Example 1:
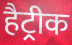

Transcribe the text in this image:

हैट्रीक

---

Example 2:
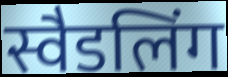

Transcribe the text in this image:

स्वैडलिंग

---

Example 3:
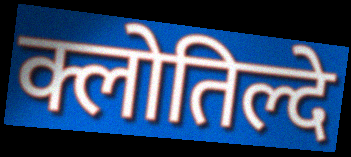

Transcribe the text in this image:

क्लोतिल्दे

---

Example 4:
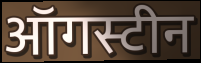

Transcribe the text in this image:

ऑगस्टीन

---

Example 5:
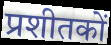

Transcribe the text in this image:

प्रशीतकों